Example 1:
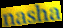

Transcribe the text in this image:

nasha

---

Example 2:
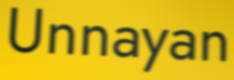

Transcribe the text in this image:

Unnayan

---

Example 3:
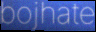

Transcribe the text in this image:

bojhate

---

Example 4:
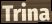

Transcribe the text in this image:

Trina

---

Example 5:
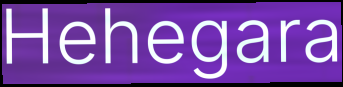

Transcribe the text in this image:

Hehegara